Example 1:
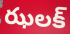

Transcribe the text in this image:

ఝలక్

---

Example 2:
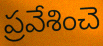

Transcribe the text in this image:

ప్రవేశించె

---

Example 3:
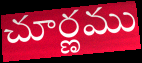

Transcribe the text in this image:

చూర్ణము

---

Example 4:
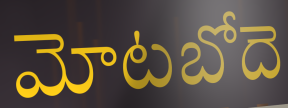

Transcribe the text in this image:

మోటబోదె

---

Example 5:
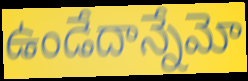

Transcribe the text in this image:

ఉండేదాన్నేమో